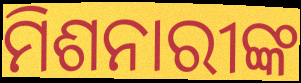
ମିଶନାରୀଙ୍କ